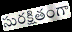
సురక్షితంగా